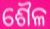
ଶୈଳ